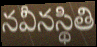
నవీనస్థితి